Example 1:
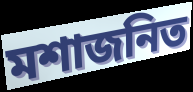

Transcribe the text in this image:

মশাজনিত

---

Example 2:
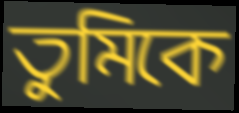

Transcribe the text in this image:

তুমিকে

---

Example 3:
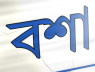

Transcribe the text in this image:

বশা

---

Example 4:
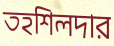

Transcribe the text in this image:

তহশিলদার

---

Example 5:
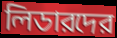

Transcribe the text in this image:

লিডারদের